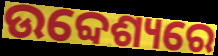
ଉବ୍ଦେଶ୍ୟରେ